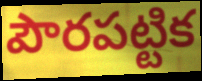
పౌరపట్టిక